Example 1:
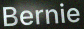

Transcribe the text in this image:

Bernie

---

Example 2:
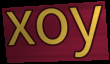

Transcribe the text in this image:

xoy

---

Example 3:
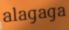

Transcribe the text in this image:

alagaga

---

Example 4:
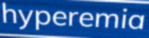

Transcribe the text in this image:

hyperemia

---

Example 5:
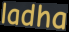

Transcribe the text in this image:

ladha